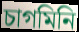
চাগমিনি